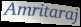
Amritaraj